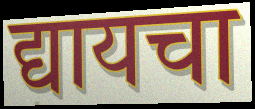
द्यायचा